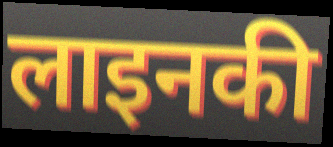
लाइनकी